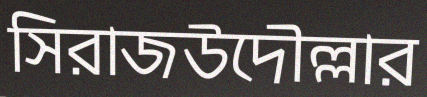
সিরাজউদৌল্লার